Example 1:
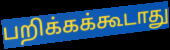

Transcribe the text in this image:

பறிக்கக்கூடாது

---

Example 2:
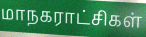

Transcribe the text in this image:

மாநகராட்சிகள்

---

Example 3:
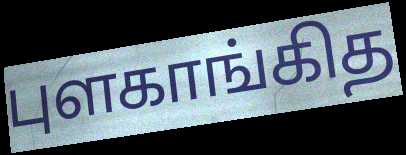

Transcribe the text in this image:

புளகாங்கித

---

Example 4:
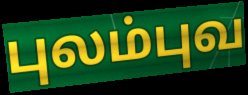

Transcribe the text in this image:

புலம்புவ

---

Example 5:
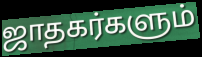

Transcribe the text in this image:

ஜாதகர்களும்